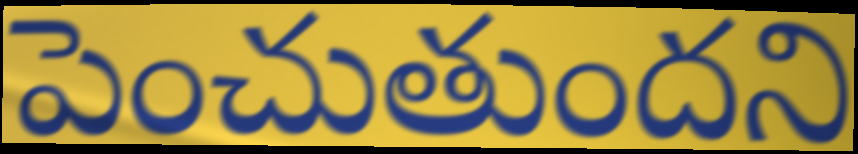
పెంచుతుందని